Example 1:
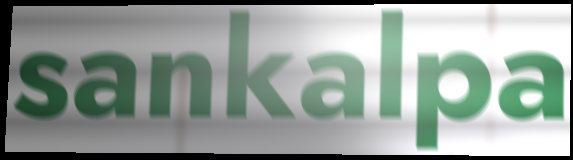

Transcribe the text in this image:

sankalpa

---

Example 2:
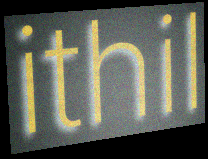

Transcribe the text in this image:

ithil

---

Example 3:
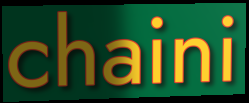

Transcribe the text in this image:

chaini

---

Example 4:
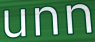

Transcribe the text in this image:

unn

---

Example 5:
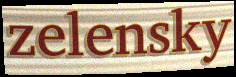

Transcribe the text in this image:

zelensky